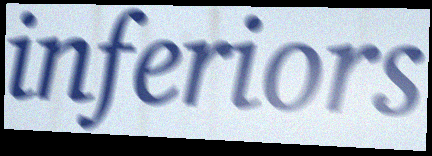
inferiors